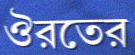
ঔরতের